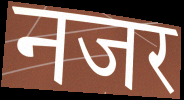
नजर